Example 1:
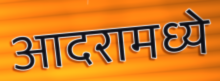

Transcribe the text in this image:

आदरामध्ये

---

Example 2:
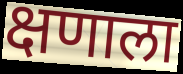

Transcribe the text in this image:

क्षणाला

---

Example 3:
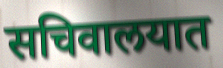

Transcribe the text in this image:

सचिवालयात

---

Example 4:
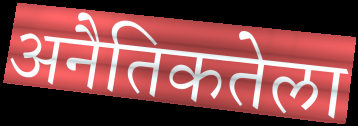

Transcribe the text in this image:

अनैतिकतेला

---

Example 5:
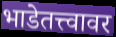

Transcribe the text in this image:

भाडेतत्त्वावर